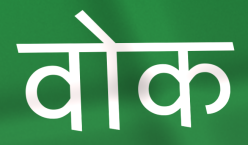
वोक